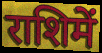
राशिमें